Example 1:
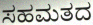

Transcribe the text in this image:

ಸಹಮತದ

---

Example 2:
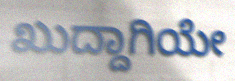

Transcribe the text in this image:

ಖುದ್ದಾಗಿಯೇ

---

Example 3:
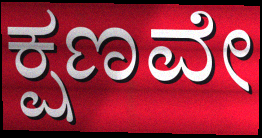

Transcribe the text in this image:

ಕ್ಷಣವೇ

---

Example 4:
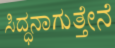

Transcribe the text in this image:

ಸಿದ್ಧನಾಗುತ್ತೇನೆ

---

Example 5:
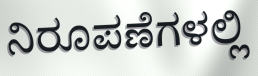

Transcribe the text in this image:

ನಿರೂಪಣೆಗಳಲ್ಲಿ